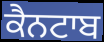
ਕੈਨਟਾਬ